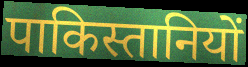
पाकिस्तानियों